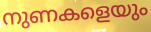
നുണകളെയും